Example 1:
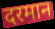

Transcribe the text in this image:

दरमान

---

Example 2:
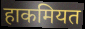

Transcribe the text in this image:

हाकमियत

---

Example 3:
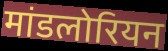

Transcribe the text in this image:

मांडलोरियन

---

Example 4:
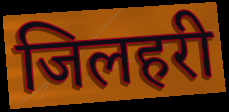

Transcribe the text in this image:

जिलहरी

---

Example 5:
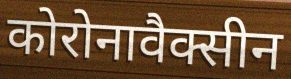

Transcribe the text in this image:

कोरोनावैक्सीन